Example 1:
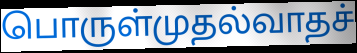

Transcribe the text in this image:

பொருள்முதல்வாதச்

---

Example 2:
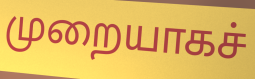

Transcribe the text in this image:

முறையாகச்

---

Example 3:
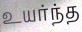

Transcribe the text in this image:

உயர்ந்த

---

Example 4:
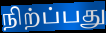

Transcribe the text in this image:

நிற்ப்பது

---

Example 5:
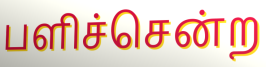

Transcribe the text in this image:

பளிச்சென்ற